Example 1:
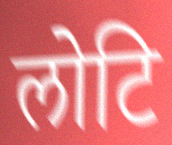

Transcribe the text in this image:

लोटि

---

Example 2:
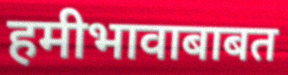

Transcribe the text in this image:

हमीभावाबाबत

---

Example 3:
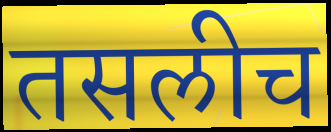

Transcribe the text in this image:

तसलीच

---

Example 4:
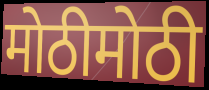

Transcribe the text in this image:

मोठीमोठी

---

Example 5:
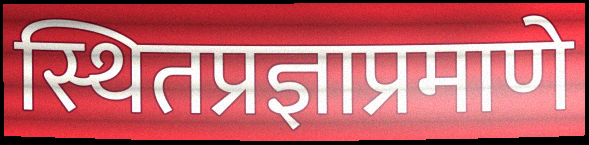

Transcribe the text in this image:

स्थितप्रज्ञाप्रमाणे